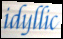
idyllic